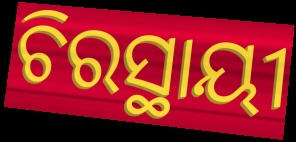
ଚିରସ୍ଥାୟୀ